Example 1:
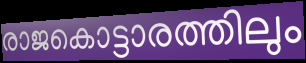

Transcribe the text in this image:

രാജകൊട്ടാരത്തിലും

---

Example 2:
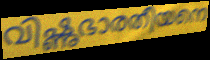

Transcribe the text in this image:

വിഷ്ണുഭാരതീയനെ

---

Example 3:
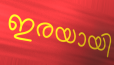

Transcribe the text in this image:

ഇരയായി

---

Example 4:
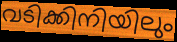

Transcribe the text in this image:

വടിക്കിനിയിലും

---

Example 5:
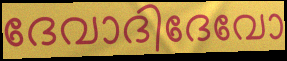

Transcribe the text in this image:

ദേവാദിദേവോ